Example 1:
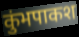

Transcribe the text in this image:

कुंभपाकश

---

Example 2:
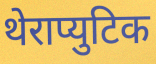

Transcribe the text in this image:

थेराप्युटिक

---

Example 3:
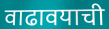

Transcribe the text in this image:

वाढावयाची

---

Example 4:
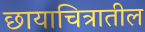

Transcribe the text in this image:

छायाचित्रातील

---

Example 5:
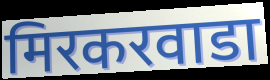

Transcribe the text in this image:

मिरकरवाडा